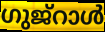
ഗുജ്റാൾ